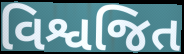
વિશ્વજિત